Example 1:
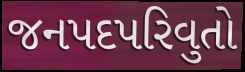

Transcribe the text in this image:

જનપદપરિવુતો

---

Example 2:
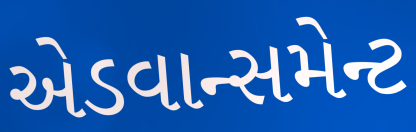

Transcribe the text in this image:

એડવાન્સમેન્ટ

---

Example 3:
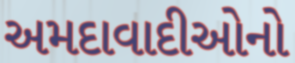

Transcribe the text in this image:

અમદાવાદીઓનો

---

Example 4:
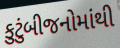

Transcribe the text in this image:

કુટુંબીજનોમાંથી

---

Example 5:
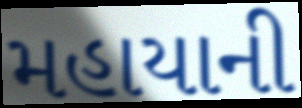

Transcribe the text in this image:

મહાયાની